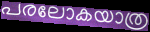
പരലോകയാത്ര